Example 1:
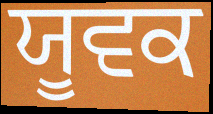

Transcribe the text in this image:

ਯੂਵਕ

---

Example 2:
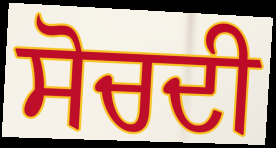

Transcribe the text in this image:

ਸੋਚਦੀ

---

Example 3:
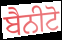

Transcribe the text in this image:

ਬੈਨੀਟੋ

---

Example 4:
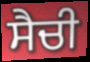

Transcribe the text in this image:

ਸੈਚੀ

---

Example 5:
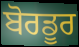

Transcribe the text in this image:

ਬੋਰਡੂਰ